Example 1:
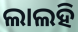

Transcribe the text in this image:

ଲାଲହି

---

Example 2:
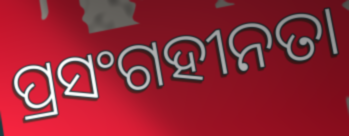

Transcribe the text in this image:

ପ୍ରସଂଗହୀନତା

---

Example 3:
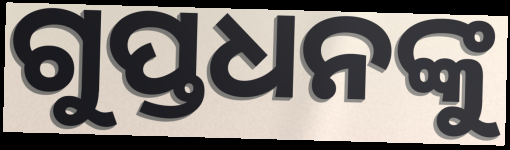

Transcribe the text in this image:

ଗୁପ୍ତଧନଙ୍କୁ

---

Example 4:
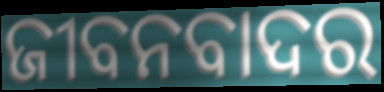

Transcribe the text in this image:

ଜୀବନବାଦର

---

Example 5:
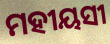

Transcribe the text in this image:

ମହୀୟସୀ